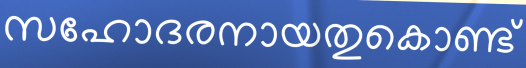
സഹോദരനായതുകൊണ്ട്